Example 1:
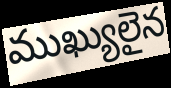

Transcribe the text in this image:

ముఖ్యులైన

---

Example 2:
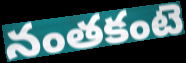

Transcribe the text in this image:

నంతకంటె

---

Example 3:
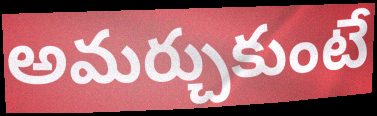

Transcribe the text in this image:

అమర్చుకుంటే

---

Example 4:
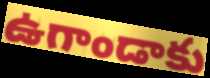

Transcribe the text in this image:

ఉగాండాకు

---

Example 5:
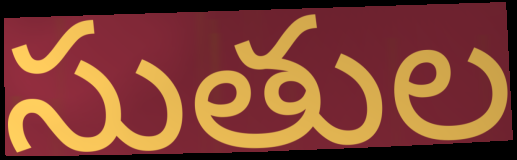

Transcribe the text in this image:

సుతుల